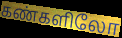
கண்களிலோ